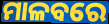
ମାଳବରେ